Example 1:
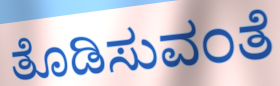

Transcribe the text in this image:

ತೊಡಿಸುವಂತೆ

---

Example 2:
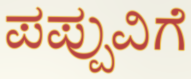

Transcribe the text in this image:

ಪಪ್ಪುವಿಗೆ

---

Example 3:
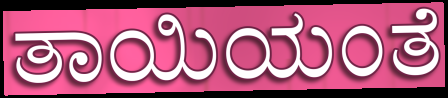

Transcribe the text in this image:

ತಾಯಿಯಂತೆ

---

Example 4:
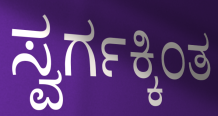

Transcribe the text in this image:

ಸ್ವರ್ಗಕ್ಕಿಂತ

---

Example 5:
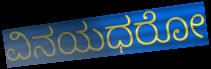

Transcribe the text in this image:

ವಿನಯಧರೋ